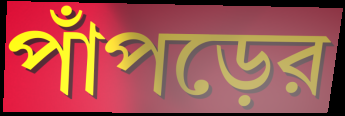
পাঁপড়ের